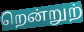
றென்றுற்